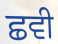
ਛਵੀ